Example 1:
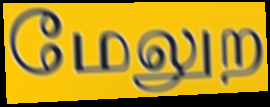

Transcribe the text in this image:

மேலுற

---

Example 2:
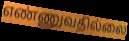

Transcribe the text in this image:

எண்ணுவதில்லை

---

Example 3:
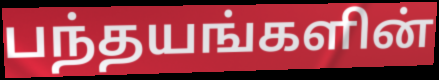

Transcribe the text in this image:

பந்தயங்களின்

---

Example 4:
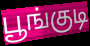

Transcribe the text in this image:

பூங்குடி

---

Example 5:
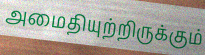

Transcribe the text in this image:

அமைதியுற்றிருக்கும்